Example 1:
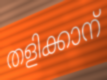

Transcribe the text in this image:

തളിക്കാന്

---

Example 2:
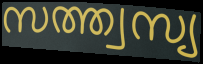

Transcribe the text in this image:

സത്ത്വസ്യ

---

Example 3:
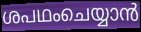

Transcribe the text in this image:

ശപഥംചെയ്യാൻ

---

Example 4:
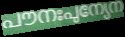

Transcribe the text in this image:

പൗനഃപുന്യേന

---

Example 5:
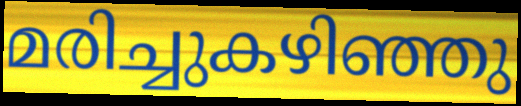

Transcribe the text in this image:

മരിച്ചുകഴിഞ്ഞു